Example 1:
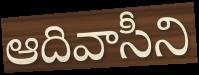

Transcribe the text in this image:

ఆదివాసీని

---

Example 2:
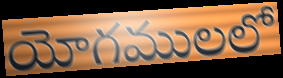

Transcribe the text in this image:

యోగములలో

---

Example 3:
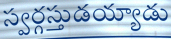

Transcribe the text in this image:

స్వర్గస్తుడయ్యాడు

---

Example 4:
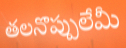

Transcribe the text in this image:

తలనొప్పులేమీ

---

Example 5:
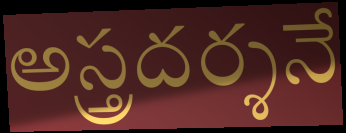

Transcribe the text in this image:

అస్త్రదర్శనే